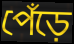
পেঁড়ে